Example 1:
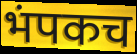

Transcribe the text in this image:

भंपकच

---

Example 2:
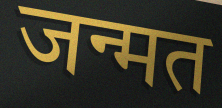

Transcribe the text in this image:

जन्मत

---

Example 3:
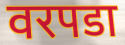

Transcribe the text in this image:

वरपडा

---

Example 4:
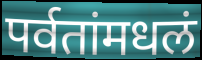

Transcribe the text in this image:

पर्वतांमधलं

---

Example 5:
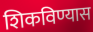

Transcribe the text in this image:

शिकविण्यास